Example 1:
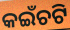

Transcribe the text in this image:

କଇଁଚଟି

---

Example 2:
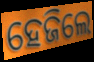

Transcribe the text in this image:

ହେଜିଲେ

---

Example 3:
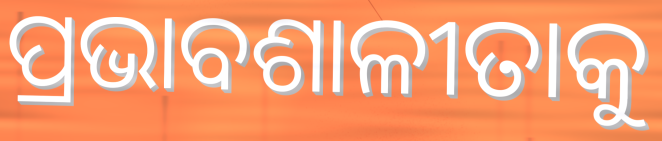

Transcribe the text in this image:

ପ୍ରଭାବଶାଳୀତାକୁ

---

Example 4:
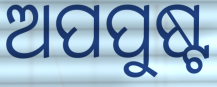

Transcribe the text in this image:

ଅପପୁଷ୍ଟ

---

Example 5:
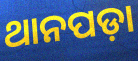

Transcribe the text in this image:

ଥାନପଡ଼ା